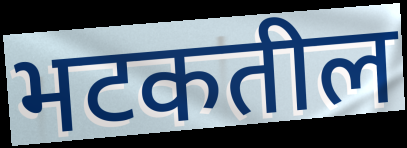
भटकतील